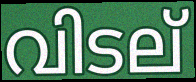
വിടല്